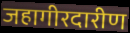
जहागीरदारीण